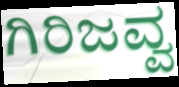
ಗಿರಿಜವ್ವ